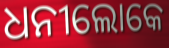
ଧନୀଲୋକେ